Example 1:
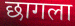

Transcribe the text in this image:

छागला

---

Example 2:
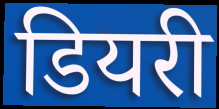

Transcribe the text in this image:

डियरी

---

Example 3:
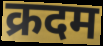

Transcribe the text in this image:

क्रदम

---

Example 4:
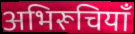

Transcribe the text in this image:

अभिरूचियाँ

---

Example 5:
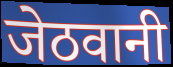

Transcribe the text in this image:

जेठवानी